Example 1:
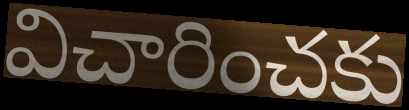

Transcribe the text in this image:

విచారించకు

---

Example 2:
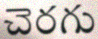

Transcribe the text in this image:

చెరగు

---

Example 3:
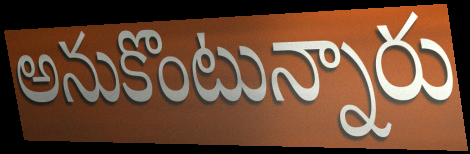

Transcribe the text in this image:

అనుకొంటున్నారు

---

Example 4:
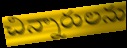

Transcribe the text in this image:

చిన్నారులను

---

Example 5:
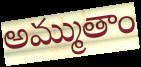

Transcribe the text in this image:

అమ్ముతాం